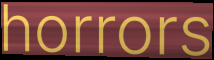
horrors